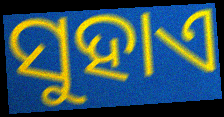
ସୁହାଏ